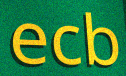
ecb